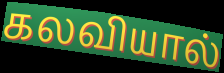
கலவியால்